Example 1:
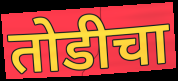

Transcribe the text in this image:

तोडीचा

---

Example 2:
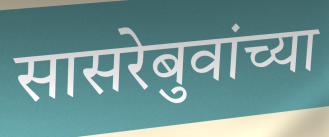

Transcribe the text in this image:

सासरेबुवांच्या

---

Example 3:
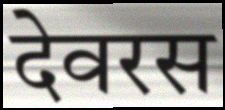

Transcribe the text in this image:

देवरस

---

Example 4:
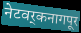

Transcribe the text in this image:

नेटवर्कनागपूर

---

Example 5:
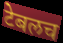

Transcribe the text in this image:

टेबलच